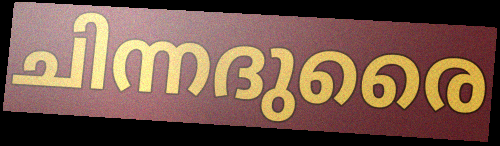
ചിന്നദുരൈ